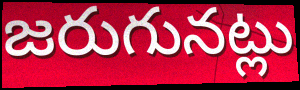
జరుగునట్లు